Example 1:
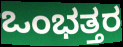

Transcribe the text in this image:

ಒಂಭತ್ತರ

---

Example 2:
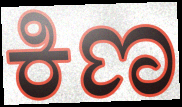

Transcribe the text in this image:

ಕಿಣ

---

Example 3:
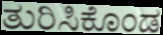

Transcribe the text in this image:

ತುರಿಸಿಕೊಂಡ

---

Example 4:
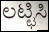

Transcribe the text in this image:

ಲಟ್ಟಿಸಿ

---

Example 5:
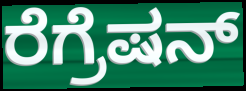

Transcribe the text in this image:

ರೆಗ್ರೆಷನ್